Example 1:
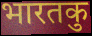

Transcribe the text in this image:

भारतकु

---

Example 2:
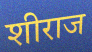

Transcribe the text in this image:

शीराज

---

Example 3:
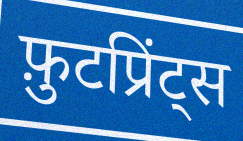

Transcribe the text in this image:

फ़ुटप्रिंट्स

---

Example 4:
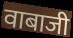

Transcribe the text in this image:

वाबाजी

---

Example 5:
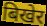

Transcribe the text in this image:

बिखेर